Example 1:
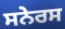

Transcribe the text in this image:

ਸਨੇਰਸ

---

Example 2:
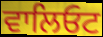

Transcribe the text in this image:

ਵਾਲਿਓਟ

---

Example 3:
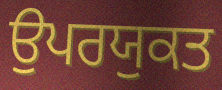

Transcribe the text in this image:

ਉਪਰਯੁਕਤ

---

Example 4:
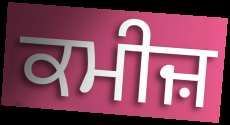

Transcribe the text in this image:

ਕਮੀਜ਼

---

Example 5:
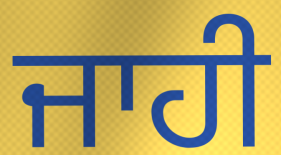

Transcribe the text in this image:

ਜਾਹੀ